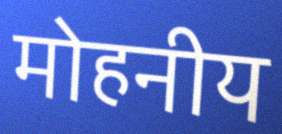
मोहनीय